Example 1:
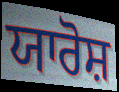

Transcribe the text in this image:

ਯਾਰੋਸ਼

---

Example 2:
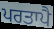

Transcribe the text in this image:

ਪਰਤਾਪੈ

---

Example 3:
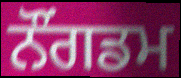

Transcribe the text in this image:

ਨੌਂਗਡਮ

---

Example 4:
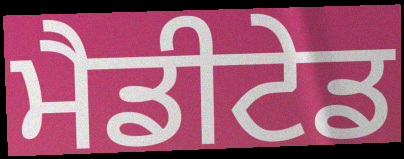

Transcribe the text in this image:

ਮੈਡੀਟੇਡ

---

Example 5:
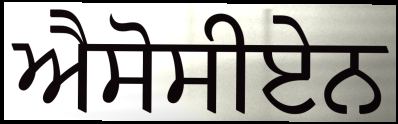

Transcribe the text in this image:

ਐਸੋਸੀਏਨ